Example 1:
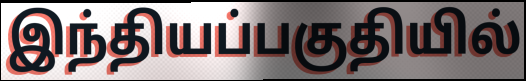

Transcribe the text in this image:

இந்தியப்பகுதியில்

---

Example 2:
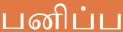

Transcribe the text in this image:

பனிப்ப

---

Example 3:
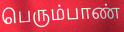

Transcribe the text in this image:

பெரும்பாண்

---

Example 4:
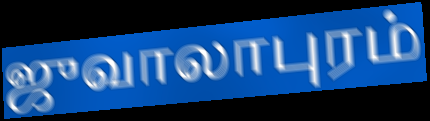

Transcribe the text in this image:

ஜுவாலாபுரம்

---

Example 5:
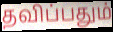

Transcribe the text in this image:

தவிப்பதும்